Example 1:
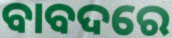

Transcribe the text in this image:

ବାବଦରେ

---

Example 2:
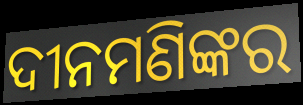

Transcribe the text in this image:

ଦୀନମଣିଙ୍କର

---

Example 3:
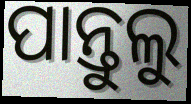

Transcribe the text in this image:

ପାନ୍ତୁଲୁ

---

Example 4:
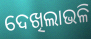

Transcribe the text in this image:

ଦେଖିଲାଭଳି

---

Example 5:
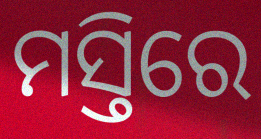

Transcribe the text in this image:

ମସ୍ତିରେ